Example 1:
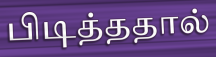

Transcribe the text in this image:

பிடித்ததால்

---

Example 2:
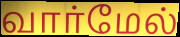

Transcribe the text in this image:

வார்மேல்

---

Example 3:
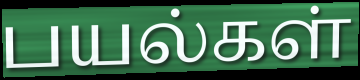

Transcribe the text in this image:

பயல்கள்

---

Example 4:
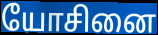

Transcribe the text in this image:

யோசினை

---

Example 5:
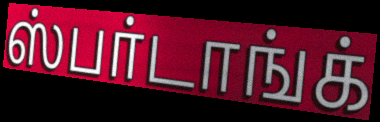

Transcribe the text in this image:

ஸ்பர்டாங்க்